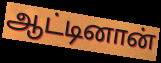
ஆட்டினான்